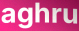
aghru